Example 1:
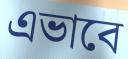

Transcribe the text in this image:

এভাবে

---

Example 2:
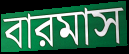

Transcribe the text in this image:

বারমাস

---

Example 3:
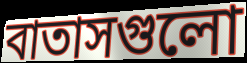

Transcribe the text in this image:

বাতাসগুলো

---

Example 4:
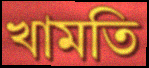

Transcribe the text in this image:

খামতি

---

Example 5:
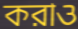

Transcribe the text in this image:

করাও